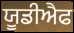
ਯੂਡੀਐਫ